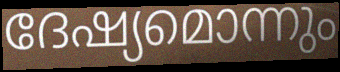
ദേഷ്യമൊന്നും